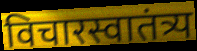
विचारस्वातंत्र्य